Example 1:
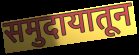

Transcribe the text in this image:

समुदायातून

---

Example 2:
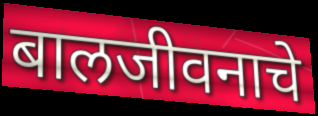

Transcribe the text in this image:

बालजीवनाचे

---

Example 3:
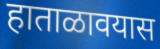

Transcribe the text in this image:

हाताळावयास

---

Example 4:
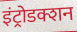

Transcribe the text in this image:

इंट्रोडक्शन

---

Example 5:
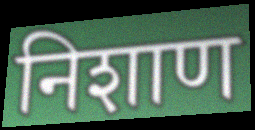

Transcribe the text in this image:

निशाण